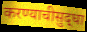
करण्याचीसुद्धा